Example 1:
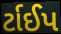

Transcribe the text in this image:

ર્ટાઈપ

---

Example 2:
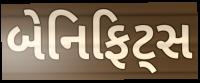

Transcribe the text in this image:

બેનિફિટ્સ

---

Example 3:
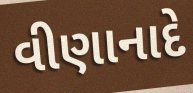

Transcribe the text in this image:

વીણાનાદે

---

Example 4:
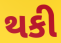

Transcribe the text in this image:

થકી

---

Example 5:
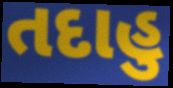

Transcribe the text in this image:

તદાહુ